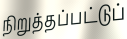
நிறுத்தப்பட்டுப்